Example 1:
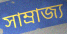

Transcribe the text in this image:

সাম্ৰাজ্য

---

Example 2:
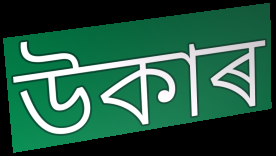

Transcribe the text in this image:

উকাৰ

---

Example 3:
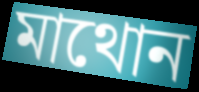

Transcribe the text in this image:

মাথোন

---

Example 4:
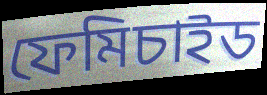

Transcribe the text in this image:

ফেমিচাইড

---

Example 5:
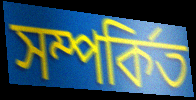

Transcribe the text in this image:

সম্পৰ্কিত